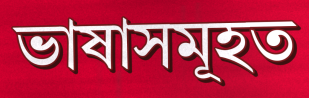
ভাষাসমূহত